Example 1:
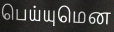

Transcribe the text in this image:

பெய்யுமென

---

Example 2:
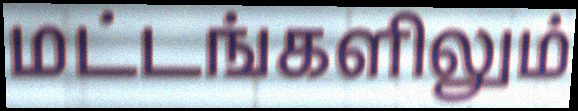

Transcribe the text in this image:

மட்டங்களிலும்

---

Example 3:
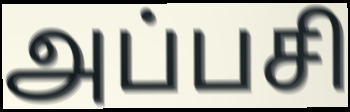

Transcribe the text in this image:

அப்பசி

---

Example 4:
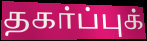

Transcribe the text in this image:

தகர்ப்புக்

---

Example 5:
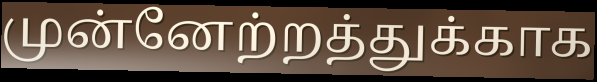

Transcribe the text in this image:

முன்னேற்றத்துக்காக